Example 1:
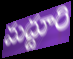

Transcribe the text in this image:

మద్దూరి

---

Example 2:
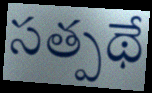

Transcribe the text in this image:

సత్పథే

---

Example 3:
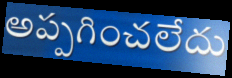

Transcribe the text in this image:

అప్పగించలేదు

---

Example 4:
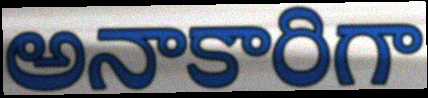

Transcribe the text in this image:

అనాకారిగా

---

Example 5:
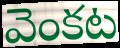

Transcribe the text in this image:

వెంకట